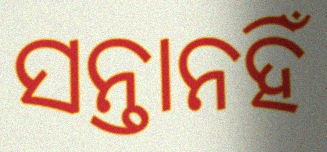
ସନ୍ତାନହିଁ